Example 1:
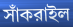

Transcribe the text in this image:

সাঁকরাইল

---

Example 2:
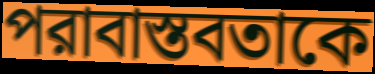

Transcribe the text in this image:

পরাবাস্তবতাকে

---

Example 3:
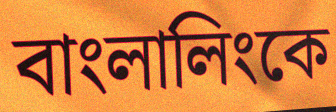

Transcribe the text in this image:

বাংলালিংকে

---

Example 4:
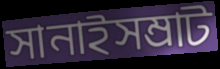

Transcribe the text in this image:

সানাইসম্রাট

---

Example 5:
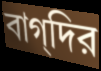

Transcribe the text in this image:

বাগ্‌দির